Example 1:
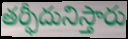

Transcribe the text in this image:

తర్ఫీదునిస్తారు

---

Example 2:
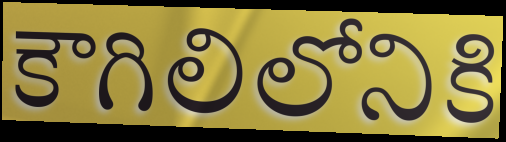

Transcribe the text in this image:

కౌగిలిలోనికి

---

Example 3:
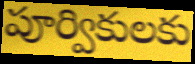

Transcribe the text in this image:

పూర్వికులకు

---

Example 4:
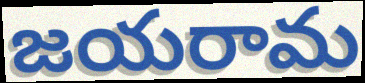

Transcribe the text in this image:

జయరామ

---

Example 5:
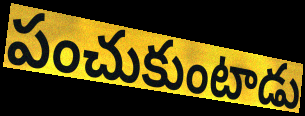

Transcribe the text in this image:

పంచుకుంటాడు